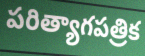
పరిత్యాగపత్రిక